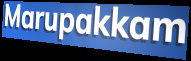
Marupakkam